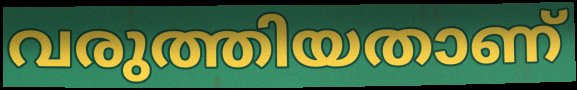
വരുത്തിയതാണ്